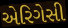
એરિગેસી